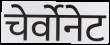
चेर्वोनेट